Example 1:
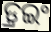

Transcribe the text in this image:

ଡ଼୍ରଇଂ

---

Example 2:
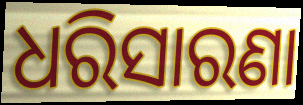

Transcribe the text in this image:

ଧରିସାରଣା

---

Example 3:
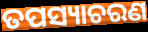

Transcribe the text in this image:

ତପସ୍ୟାଚରଣ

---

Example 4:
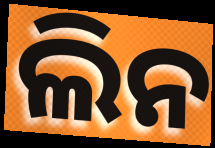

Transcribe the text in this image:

ଲିନ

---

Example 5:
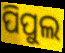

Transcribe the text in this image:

ପିପୁଲ